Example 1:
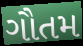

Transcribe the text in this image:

ગૌતમ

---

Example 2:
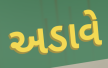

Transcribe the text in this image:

અડાવે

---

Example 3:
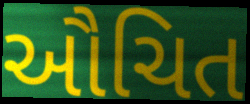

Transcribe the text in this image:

ઔચિત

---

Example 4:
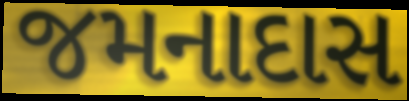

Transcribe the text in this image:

જમનાદાસ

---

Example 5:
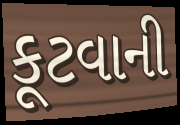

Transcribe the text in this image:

કૂટવાની